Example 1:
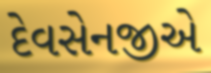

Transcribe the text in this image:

દેવસેનજીએ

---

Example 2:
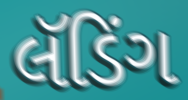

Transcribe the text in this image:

લૅડિંગ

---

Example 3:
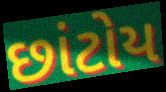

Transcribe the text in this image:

છાંટોય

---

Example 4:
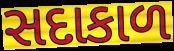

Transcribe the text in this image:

સદાકાળ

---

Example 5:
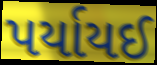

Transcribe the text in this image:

પર્યાયઈ